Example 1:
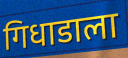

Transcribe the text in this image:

गिधाडाला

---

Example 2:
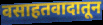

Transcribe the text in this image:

वसाहतवादातून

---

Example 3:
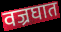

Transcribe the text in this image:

वज्रघात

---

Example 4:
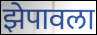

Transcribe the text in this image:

झेपावला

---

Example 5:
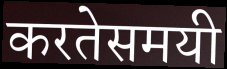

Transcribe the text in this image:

करतेसमयी